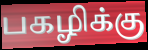
பகழிக்கு